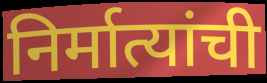
निर्मात्यांची